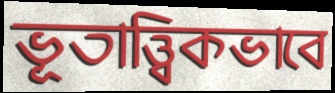
ভূতাত্ত্বিকভাবে